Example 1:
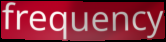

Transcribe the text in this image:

frequency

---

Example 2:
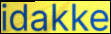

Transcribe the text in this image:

idakke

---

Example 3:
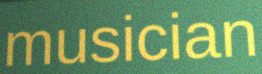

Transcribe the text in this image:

musician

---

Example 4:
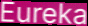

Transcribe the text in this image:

Eureka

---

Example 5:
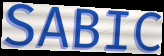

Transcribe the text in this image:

SABIC